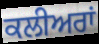
ਕਲੀਅਰਾਂ